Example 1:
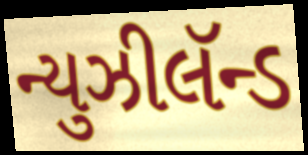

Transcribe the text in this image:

ન્યુઝીલૅન્ડ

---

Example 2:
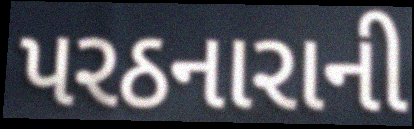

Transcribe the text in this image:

પરઠનારાની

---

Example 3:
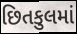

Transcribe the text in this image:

છિતકુલમાં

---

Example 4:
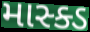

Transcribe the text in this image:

માસ્ક્ડ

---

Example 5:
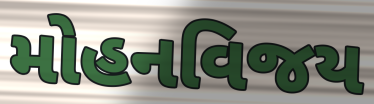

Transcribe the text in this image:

મોહનવિજય